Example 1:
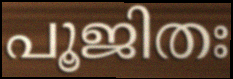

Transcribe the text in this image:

പൂജിതഃ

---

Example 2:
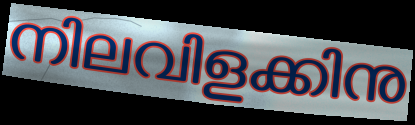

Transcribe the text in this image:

നിലവിളക്കിനു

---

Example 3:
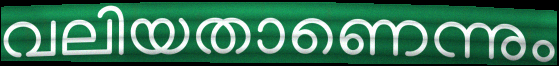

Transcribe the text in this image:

വലിയതാണെന്നും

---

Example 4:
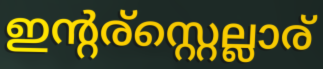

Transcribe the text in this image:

ഇന്റര്സ്റ്റെല്ലാര്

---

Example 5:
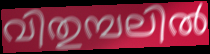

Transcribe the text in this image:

വിതുമ്പലിൽ